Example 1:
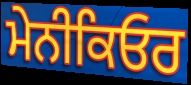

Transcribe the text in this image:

ਮੇਨੀਕਿਓਰ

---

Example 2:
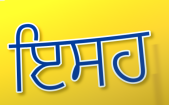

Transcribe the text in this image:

ਇਸਹ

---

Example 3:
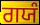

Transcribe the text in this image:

ਗਯੰ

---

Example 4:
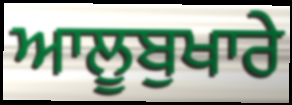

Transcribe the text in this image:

ਆਲੂਬੁਖਾਰੇ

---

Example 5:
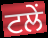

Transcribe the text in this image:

ਟਲੇਂ